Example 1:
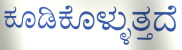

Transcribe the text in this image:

ಕೂಡಿಕೊಳ್ಳುತ್ತದೆ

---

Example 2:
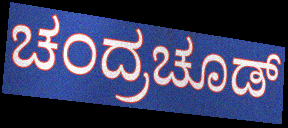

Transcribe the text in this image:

ಚಂದ್ರಚೂಡ್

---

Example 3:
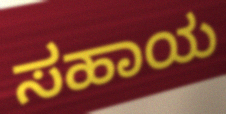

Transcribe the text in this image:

ಸಹಾಯ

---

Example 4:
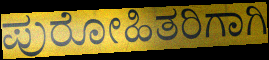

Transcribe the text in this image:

ಪುರೋಹಿತರಿಗಾಗಿ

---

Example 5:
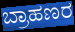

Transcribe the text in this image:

ಬ್ರಾಹಣರ